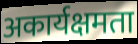
अकार्यक्षमता